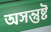
অসন্তুষ্ট